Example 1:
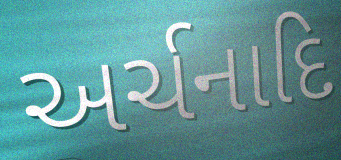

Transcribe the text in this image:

અર્ચનાદિ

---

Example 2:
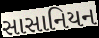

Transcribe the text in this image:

સાસાનિયન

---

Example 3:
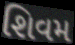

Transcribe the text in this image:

શિવમ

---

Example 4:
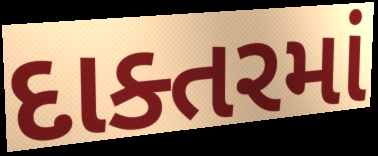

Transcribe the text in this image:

દાક્તરમાં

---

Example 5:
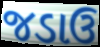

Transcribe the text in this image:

જડાઉ